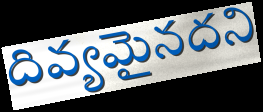
దివ్యమైనదని